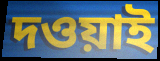
দওয়াই